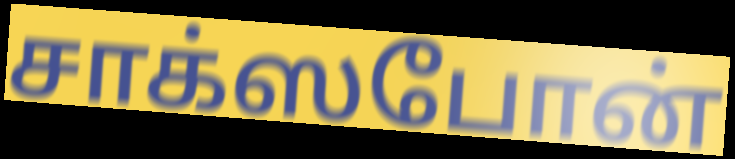
சாக்ஸபோன்